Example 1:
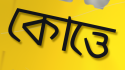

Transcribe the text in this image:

কোত্তে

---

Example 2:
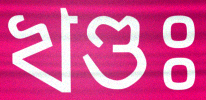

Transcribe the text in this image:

খণ্ডঃ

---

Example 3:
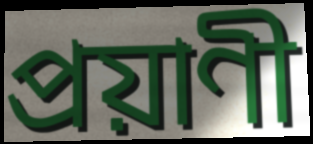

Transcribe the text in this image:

প্রয়াণী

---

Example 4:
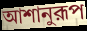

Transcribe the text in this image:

আশানুরূপ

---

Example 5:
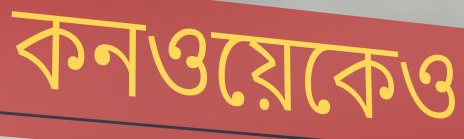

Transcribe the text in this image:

কনওয়েকেও